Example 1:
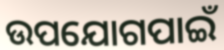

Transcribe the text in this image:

ଉପଯୋଗପାଇଁ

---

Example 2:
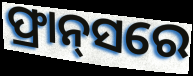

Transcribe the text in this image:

ଫ୍ରାନ୍‌ସରେ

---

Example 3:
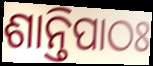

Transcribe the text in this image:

ଶାନ୍ତିପାଠଃ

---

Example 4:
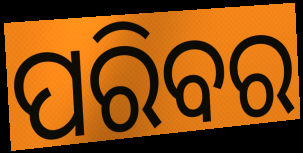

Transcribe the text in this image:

ପରିବର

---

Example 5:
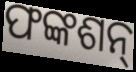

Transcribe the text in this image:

ଫଙ୍କଶନ୍